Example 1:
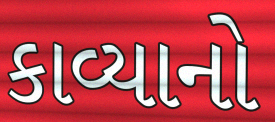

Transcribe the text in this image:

કાવ્યાનો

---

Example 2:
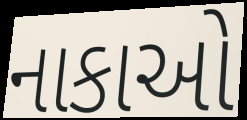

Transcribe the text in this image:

નાકાઓ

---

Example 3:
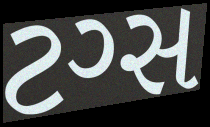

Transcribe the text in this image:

ટગ્સ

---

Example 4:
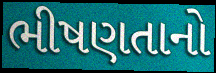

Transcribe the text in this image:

ભીષણતાનો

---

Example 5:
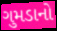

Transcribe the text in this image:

ગુમડાનો